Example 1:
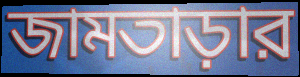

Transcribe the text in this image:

জামতাড়ার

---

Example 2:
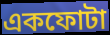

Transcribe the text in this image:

একফোটা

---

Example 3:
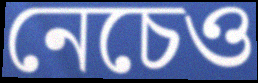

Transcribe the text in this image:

নেচেও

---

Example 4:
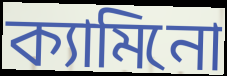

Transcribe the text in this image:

ক্যামিনো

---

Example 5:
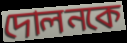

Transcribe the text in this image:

দোলনকে